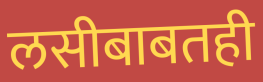
लसीबाबतही